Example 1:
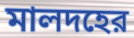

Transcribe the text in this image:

মালদহের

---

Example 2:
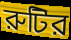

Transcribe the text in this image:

রুটির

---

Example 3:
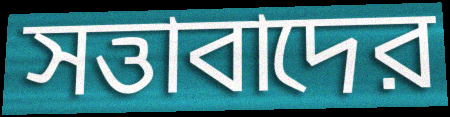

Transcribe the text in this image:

সত্তাবাদের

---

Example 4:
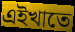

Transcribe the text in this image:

এইখাতে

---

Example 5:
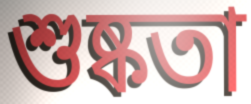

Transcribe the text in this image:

শুষ্কতা